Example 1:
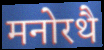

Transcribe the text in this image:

मनोरथै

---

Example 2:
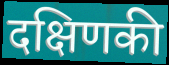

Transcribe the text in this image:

दक्षिणकी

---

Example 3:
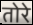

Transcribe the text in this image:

तोरे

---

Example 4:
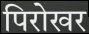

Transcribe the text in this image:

पिरोखर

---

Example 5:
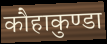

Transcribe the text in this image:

कौहाकुण्डा